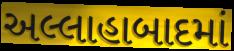
અલ્લાહાબાદમાં